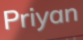
Priyan